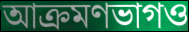
আক্রমণভাগও